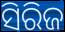
ସିରିଜ